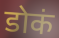
डोकं